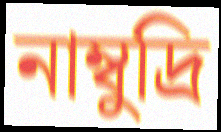
নাম্বুদ্রি